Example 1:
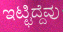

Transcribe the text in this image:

ಇಟ್ಟಿದ್ದೆವು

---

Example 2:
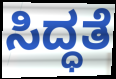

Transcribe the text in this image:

ಸಿದ್ಧತೆ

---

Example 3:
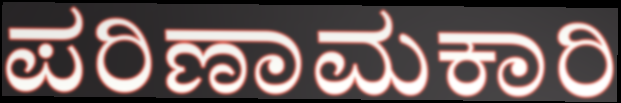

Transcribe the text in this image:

ಪರಿಣಾಮಕಾರಿ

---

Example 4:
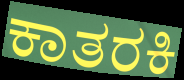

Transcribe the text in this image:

ಕಾತರಕಿ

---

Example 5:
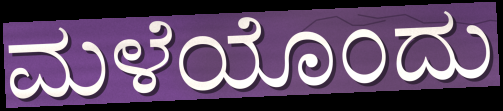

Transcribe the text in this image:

ಮಳೆಯೊಂದು